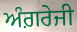
ਅੰਗ਼ਰੇਜੀ